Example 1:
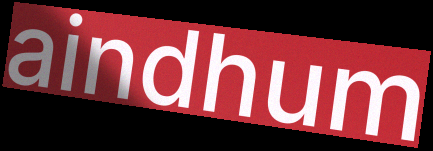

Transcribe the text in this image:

aindhum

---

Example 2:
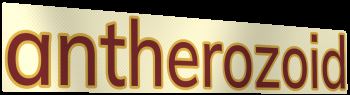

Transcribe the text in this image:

antherozoid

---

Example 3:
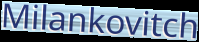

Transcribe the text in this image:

Milankovitch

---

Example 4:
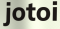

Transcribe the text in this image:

jotoi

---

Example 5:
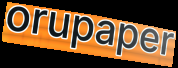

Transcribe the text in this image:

orupaper